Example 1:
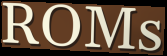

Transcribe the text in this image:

ROMs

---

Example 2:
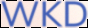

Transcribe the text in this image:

WKD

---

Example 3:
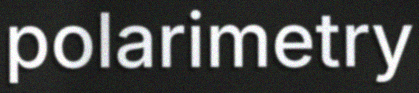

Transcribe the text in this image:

polarimetry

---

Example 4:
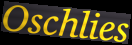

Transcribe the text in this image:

Oschlies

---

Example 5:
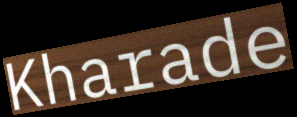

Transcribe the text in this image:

Kharade